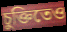
চুক্তিতেও